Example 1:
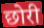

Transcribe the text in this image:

छोरी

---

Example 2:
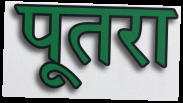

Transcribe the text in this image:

पूतरा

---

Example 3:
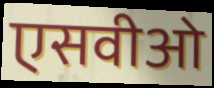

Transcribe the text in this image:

एसवीओ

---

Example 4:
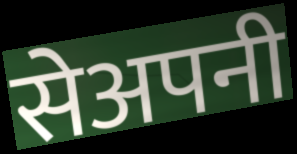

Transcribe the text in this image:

सेअपनी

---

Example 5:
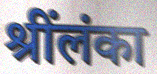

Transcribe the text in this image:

श्रींलंका